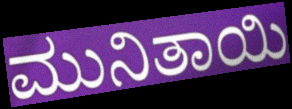
ಮುನಿತಾಯಿ